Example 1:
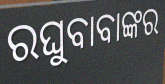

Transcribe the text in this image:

ରଘୁବାବାଙ୍କର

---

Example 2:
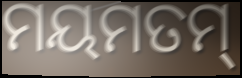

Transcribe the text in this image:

ମୟମତମ୍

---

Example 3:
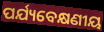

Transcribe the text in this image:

ପର୍ଯ୍ୟବେକ୍ଷଣୀୟ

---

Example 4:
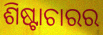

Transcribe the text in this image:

ଶିଷ୍ଟାଚାରର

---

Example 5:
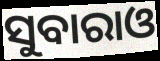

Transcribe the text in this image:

ସୁବାରାଓ